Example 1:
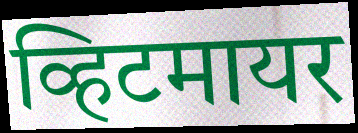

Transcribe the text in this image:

व्हिटमायर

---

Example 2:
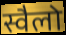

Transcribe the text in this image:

स्वैलो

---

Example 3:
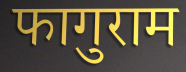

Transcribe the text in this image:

फागुराम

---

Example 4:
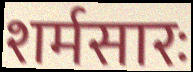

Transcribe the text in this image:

शर्मसारः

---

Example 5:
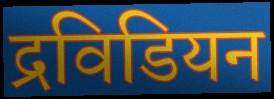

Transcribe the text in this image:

द्रविडियन